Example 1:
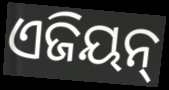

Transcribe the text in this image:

ଏଜିୟନ୍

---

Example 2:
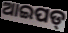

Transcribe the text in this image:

ଆଇପଡ୍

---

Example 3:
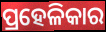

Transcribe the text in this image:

ପ୍ରହେଳିକାର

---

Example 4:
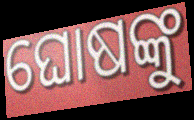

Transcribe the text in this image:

ଘୋଷଙ୍କୁ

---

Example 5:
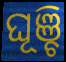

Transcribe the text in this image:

ଘୂଞ୍ଚି